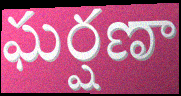
ఘర్షణా